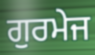
ਗੁਰਮੇਜ